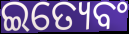
ଇତ୍ୟେବଂ